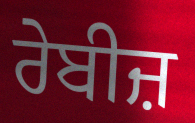
ਰੇਬੀਜ਼